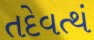
તદેવત્થં